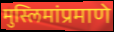
मुस्लिमांप्रमाणे